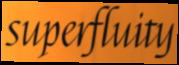
superfluity